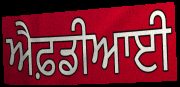
ਐਫ਼ਡੀਆਈ